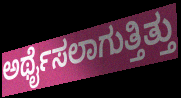
ಅರ್ಥೈಸಲಾಗುತ್ತಿತ್ತು